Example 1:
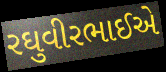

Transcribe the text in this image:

રઘુવીરભાઈએ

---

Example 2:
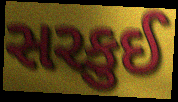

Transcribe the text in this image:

સરકુઈ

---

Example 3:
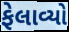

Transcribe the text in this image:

ફેલાવ્યો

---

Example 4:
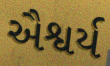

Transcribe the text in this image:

ઐશ્વર્ય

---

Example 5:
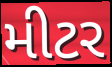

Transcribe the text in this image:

મીટર